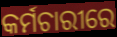
କର୍ମଚାରୀରେ